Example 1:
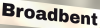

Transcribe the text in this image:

Broadbent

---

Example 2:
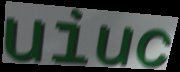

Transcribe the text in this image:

uiuc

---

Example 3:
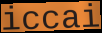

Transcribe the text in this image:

iccai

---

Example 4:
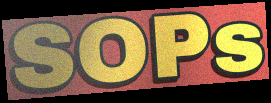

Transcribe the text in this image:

SOPs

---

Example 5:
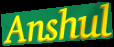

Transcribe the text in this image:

Anshul